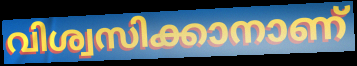
വിശ്വസിക്കാനാണ്